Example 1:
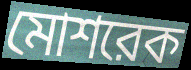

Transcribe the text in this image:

মোশরেক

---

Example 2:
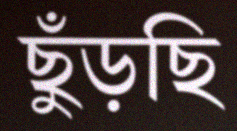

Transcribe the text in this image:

ছুঁড়ছি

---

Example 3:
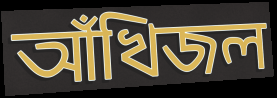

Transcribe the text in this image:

আঁখিজল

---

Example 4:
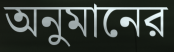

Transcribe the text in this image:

অনুমানের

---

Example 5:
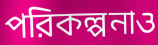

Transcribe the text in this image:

পরিকল্পনাও